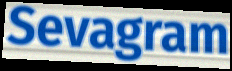
Sevagram